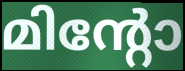
മിന്റോ